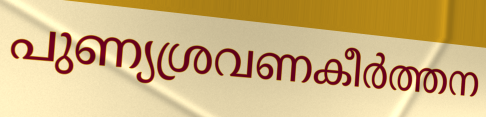
പുണ്യശ്രവണകീർത്തന